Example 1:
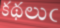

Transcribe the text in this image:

కథలుఁ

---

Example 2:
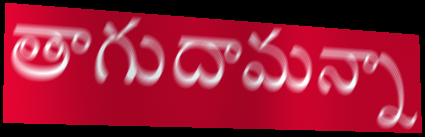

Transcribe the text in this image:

తాగుదామన్నా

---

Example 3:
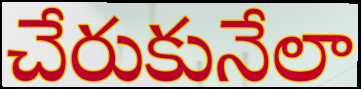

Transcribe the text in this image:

చేరుకునేలా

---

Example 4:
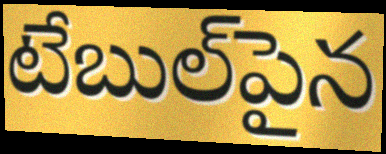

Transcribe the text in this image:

టేబుల్‌పైన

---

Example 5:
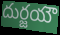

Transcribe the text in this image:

దుర్జయౌ